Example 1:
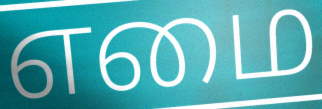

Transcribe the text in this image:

எமை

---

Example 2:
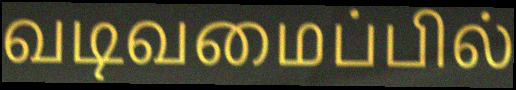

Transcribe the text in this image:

வடிவமைப்பில்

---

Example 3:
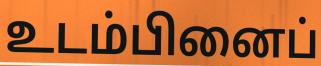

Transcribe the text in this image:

உடம்பினைப்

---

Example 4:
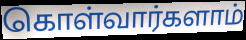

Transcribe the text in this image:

கொள்வார்களாம்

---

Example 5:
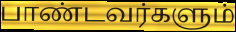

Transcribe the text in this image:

பாண்டவர்களும்